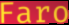
Faro